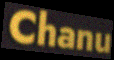
Chanu